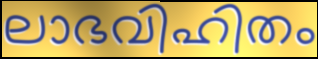
ലാഭവിഹിതം